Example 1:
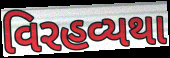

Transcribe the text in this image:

વિરહવ્યથા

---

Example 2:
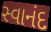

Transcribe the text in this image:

સ્વાનંદ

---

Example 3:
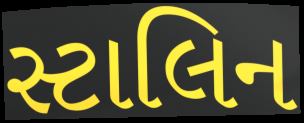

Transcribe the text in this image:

સ્ટાલિન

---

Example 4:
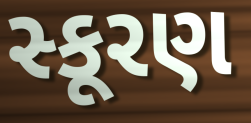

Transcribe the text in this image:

સ્કૂરણ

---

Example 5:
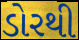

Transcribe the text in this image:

ડોરથી